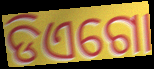
ଡିଏଗୋ